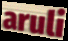
aruli